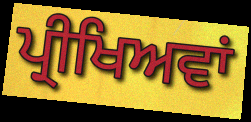
ਪ੍ਰੀਖਿਅਵਾਂ